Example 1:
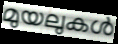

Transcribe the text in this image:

മുയലുകൾ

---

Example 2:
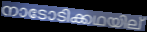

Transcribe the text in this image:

നാടോടിക്കഥയില്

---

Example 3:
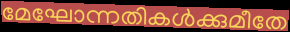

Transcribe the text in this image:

മേഘോന്നതികൾക്കുമീതേ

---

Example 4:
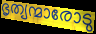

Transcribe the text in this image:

ഭൃത്യന്മാരോടു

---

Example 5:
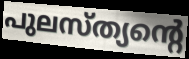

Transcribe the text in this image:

പുലസ്ത്യന്റെ